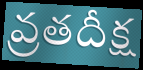
వ్రతదీక్ష